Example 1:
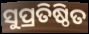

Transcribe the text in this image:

ସୁପ୍ରତିଷ୍ଠିତ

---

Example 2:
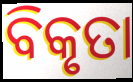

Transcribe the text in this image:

ବିକୃତା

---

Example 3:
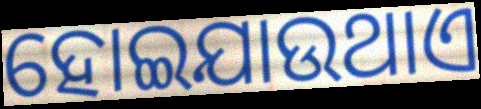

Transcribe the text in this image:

ହୋଇଯାଉଥାଏ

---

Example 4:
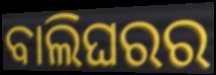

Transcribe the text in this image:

ବାଲିଘରର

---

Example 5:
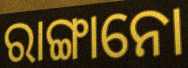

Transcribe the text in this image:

ରାଙ୍ଗାନୋ